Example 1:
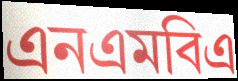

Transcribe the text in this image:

এনএমবিএ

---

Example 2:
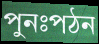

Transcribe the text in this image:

পুনঃপঠন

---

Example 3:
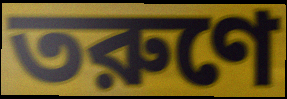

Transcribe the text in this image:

তরুণে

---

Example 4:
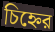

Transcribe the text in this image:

চিহ্নের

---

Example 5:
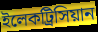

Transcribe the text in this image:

ইলেকট্রিসিয়ান